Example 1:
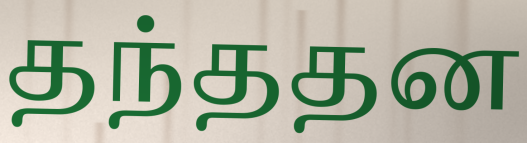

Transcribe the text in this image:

தந்ததன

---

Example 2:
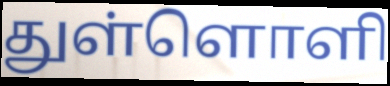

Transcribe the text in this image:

துள்ளொளி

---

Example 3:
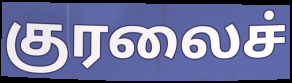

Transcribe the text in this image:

குரலைச்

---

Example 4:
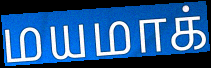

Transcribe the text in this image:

மயமாக்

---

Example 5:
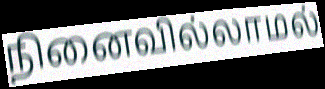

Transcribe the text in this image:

நினைவில்லாமல்